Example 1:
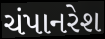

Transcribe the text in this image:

ચંપાનરેશ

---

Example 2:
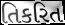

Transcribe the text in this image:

તિકરિત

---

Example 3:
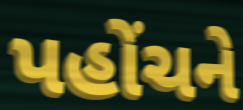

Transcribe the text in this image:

પહોંચને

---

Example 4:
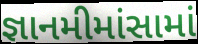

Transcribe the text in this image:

જ્ઞાનમીમાંસામાં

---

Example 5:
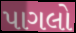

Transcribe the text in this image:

પાગલો